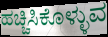
ಹಚ್ಚಿಸಿಕೊಳ್ಳುವ